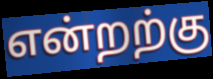
என்றற்கு